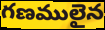
గణములైన